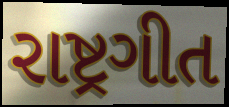
રાષ્ટ્રગીત